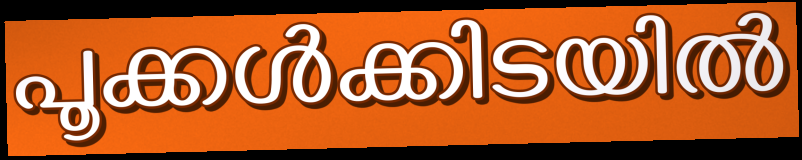
പൂക്കൾക്കിടയിൽ